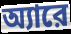
অ্যারে